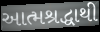
આત્મશ્રદ્ધાથી